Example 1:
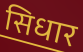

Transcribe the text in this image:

सिधार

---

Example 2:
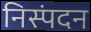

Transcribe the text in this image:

निस्पंदन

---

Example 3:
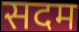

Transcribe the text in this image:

सदम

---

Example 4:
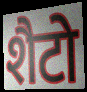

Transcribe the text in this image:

शैटो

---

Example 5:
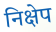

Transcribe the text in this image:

निक्षेप